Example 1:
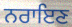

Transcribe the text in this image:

ਨਰਾਇਣ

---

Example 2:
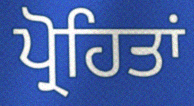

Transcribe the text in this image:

ਪ੍ਰੋਹਿਤਾਂ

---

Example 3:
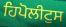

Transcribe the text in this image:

ਹਿਪੋਲੀਟੁਸ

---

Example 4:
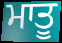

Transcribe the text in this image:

ਮਾਤੂ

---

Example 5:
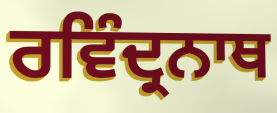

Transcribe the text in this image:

ਰਵਿੰਦ੍ਰਨਾਥ